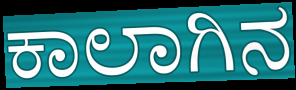
ಕಾಲಾಗಿನ